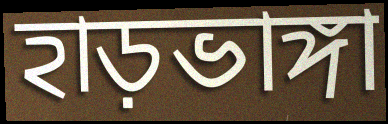
হাড়ভাঙ্গা